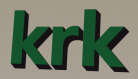
krk